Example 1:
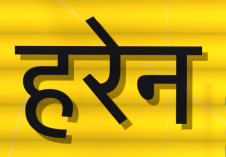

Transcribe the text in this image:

हरेन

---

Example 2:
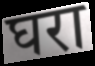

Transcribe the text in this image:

घरा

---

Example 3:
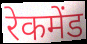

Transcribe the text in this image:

रेकमेंड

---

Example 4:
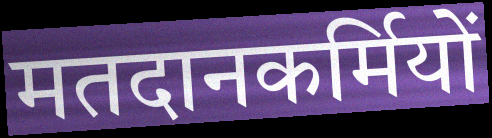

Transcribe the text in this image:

मतदानकर्मियों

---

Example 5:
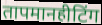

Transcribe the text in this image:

तापमानहीटिंग